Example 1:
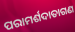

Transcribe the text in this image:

ପରାମର୍ଶଦାତାଗଣ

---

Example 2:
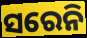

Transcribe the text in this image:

ସରେନି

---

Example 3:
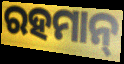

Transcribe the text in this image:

ରହମାନ୍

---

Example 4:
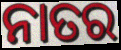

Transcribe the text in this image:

ନାତର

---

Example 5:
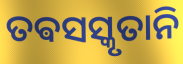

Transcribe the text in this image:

ତଵସସ୍କୃତାନି